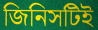
জিনিসটিই